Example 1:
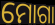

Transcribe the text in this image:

ମୋଗା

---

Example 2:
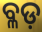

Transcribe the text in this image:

ବ୍ଳଡ଼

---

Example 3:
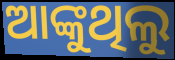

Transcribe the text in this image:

ଆଙ୍କୁଥିଲୁ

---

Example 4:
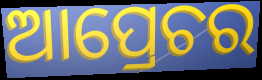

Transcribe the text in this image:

ଆପ୍ରେଚର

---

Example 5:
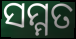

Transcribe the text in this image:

ସମ୍ମତ